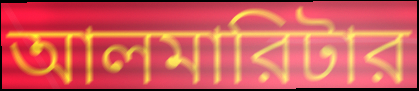
আলমারিটার